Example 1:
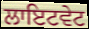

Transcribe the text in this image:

ਲਾਇਟਵੇਟ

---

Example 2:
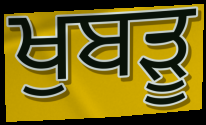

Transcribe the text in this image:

ਖੁਬੜੂ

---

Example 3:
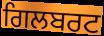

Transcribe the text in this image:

ਗਿਲਬਰਟ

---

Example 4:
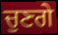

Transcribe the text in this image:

ਚੁਣਗੇ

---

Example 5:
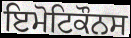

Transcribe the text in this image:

ਇਮੋਟਿਕੌਨਸ